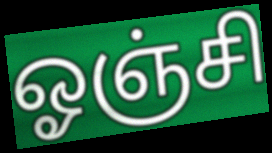
ஓஞ்சி